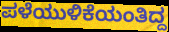
ಪಳೆಯುಳಿಕೆಯಂತಿದ್ದ